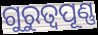
ଗୁରୁତ୍ବପୂଣ୍ଣ